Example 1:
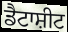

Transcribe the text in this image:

ਡੈਟਾਸ਼ੀਟ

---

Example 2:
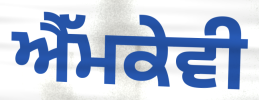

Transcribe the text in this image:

ਐੱਮਕੇਵੀ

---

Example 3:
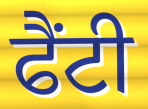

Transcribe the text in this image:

ਫੈਂਟੀ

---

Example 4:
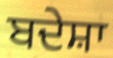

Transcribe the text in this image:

ਬਦੇਸ਼ਾ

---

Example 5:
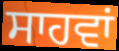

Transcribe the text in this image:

ਸਾਹਵਾਂ